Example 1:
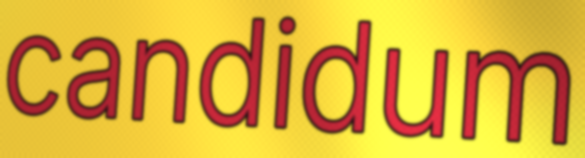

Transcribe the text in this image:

candidum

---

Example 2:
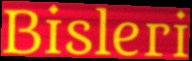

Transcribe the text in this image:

Bisleri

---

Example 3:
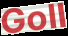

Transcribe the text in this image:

Goll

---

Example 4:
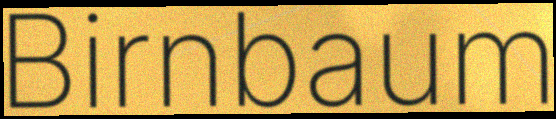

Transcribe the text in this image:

Birnbaum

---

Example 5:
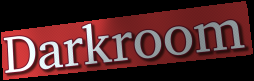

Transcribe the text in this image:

Darkroom